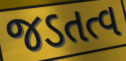
જડતત્વ